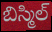
బిస్మిల్